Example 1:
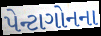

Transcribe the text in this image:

પેન્ટાગોનના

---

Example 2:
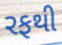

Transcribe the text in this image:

રફથી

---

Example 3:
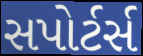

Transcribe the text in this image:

સપોર્ટર્સ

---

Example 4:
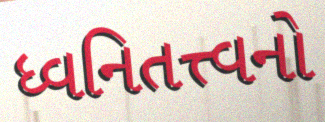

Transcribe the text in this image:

ધ્વનિતત્ત્વનો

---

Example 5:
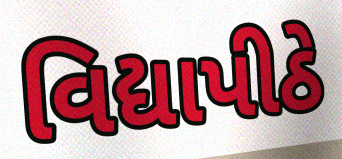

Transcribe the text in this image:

વિદ્યાપીઠે